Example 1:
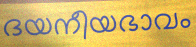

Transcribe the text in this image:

ദയനീയഭാവം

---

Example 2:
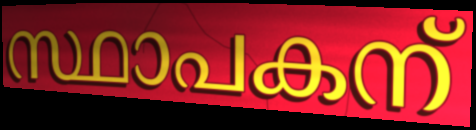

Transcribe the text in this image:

സ്ഥാപകന്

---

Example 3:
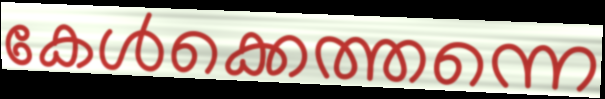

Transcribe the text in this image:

കേൾക്കെത്തന്നെ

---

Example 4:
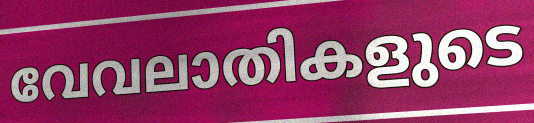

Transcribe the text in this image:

വേവലാതികളുടെ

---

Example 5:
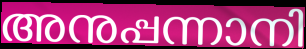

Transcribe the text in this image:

അനുപ്പന്നാനി